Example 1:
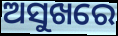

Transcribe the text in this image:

ଅସୁଖରେ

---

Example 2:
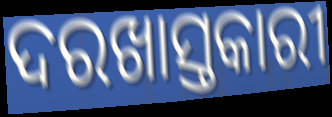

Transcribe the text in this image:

ଦରଖାସ୍ତକାରୀ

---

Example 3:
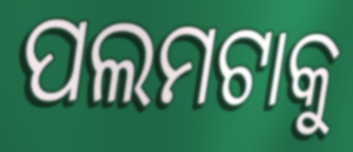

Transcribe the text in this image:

ପଲମଟାକୁ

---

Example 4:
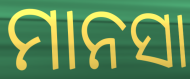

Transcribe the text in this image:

ମାନସା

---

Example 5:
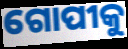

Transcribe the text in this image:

ଗୋପୀକୁ